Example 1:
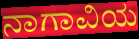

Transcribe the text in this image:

ನಾಗಾವಿಯ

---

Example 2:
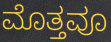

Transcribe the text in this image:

ಮೊತ್ತವೂ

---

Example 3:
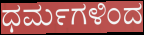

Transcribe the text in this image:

ಧರ್ಮಗಳಿಂದ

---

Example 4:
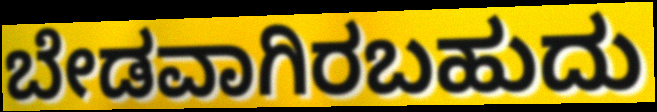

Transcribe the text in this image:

ಬೇಡವಾಗಿರಬಹುದು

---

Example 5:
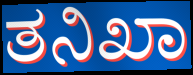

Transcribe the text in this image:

ತನಿಖಾ